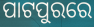
ପାଟପୁରରେ